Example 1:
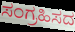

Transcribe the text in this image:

ಸಂಗ್ರಹಿಸದ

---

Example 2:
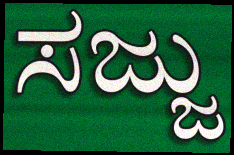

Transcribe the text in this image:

ಸಜ್ಜು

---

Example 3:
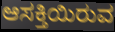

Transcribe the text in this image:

ಆಸಕ್ತಿಯಿರುವ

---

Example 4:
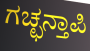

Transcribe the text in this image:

ಗಚ್ಛನ್ತಾಪಿ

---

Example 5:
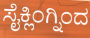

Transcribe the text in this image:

ಸೈಕ್ಲಿಂಗ್ನಿಂದ